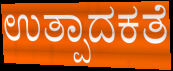
ಉತ್ಪಾದಕತೆ